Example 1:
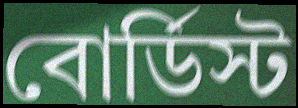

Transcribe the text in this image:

বোর্ডিস্ট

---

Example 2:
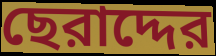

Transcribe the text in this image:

ছেরাদ্দের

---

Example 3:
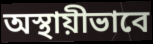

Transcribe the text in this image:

অস্থায়ীভাবে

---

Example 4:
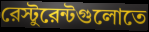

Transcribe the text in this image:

রেস্টুরেন্টগুলোতে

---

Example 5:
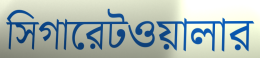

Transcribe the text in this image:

সিগারেটওয়ালার